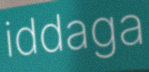
iddaga